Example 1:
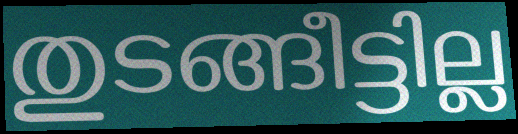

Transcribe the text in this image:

തുടങ്ങീട്ടില്ല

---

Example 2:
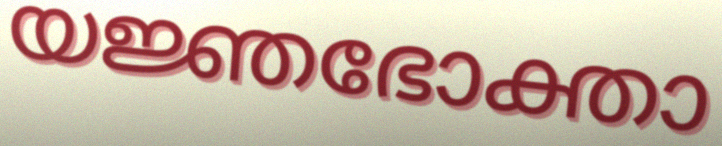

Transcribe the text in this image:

യജ്ഞഭോക്താ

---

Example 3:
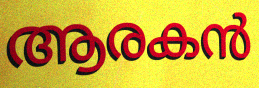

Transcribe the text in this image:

ആരകൻ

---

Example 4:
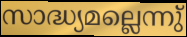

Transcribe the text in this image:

സാദ്ധ്യമല്ലെന്നു്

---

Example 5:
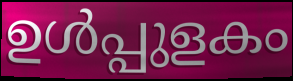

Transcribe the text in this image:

ഉൾപ്പുളകം